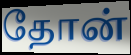
தோன்